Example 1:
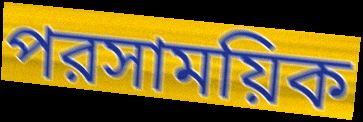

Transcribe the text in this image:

পরসাময়িক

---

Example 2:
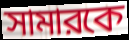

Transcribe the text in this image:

সামারকে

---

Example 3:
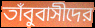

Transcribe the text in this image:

তাঁবুবাসীদের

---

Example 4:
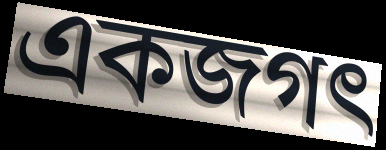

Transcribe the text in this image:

একজগৎ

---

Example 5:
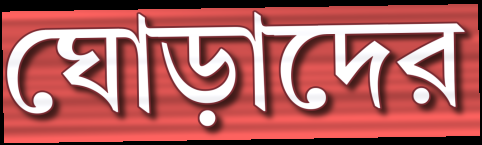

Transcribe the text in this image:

ঘোড়াদের